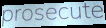
prosecute